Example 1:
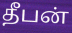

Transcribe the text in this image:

தீபன்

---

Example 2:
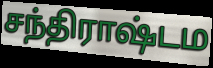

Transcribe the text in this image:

சந்திராஷ்டம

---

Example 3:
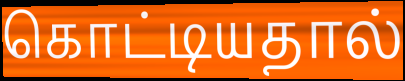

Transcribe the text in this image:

கொட்டியதால்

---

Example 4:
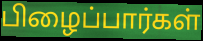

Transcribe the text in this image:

பிழைப்பார்கள்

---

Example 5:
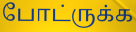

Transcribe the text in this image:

போட்ருக்க